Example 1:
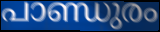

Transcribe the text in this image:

പാണ്ഡുരം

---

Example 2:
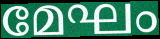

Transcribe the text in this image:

മേഘം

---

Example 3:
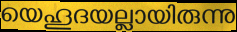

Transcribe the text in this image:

യെഹൂദയല്ലായിരുന്നു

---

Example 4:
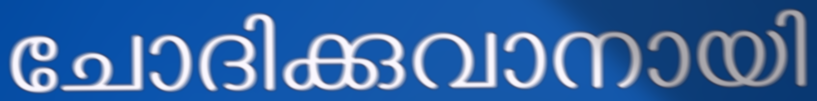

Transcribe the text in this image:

ചോദിക്കുവാനായി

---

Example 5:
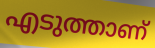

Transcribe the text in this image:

എടുത്താണ്